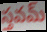
స్తవమ్